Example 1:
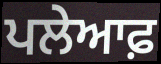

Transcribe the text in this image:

ਪਲੇਆਫ਼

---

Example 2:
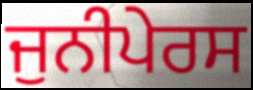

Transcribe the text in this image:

ਜੁਨੀਪੇਰਸ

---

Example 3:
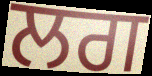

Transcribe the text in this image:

ਲਗ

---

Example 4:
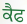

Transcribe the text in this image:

ਕੈਫ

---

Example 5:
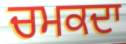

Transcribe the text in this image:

ਚਮਕਦਾ